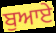
ਬੁਆਏ